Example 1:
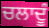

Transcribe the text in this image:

ਚਲਾਦੂੰ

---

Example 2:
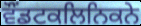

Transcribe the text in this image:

ਵੌਂਡਟਕਲਿਨਿਕਨੇ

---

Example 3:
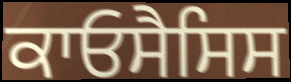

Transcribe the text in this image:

ਕਾਓਸੈਸਿਸ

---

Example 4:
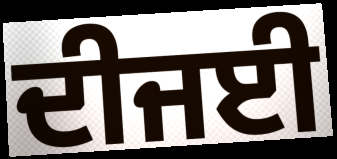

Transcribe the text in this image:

ਦੀਜਈ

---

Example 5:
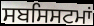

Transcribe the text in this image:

ਸਬਸਿਸਟਮਾਂ